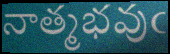
నాత్మభవుఁ